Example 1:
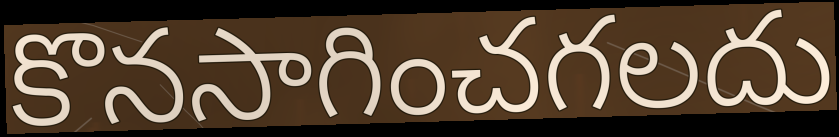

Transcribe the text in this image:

కొనసాగించగలదు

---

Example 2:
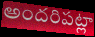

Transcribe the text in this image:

అందరిపట్లా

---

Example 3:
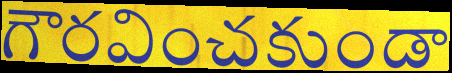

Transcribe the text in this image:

గౌరవించకుండా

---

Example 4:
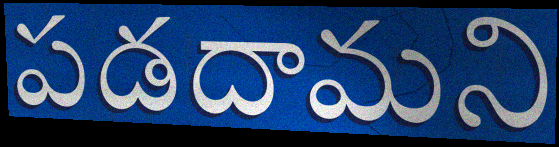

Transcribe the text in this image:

పడదామని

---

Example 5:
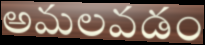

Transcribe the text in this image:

అమలవడం